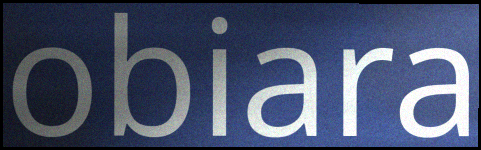
obiara